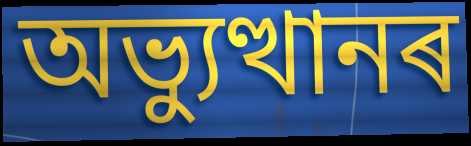
অভ্যুত্থানৰ